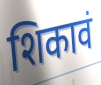
शिकावं